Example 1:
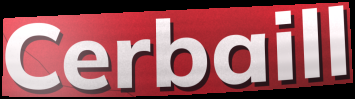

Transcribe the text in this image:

Cerbaill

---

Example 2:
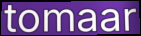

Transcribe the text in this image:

tomaar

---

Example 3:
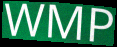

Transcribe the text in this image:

WMP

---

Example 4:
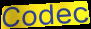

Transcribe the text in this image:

Codec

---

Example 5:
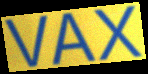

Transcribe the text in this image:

VAX